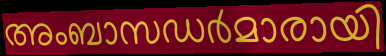
അംബാസഡർമാരായി